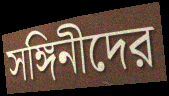
সঙ্গিনীদের